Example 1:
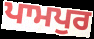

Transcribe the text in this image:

ਪਾਮਪੁਰ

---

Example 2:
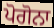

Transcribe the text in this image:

ਪੋਗੋਨਾ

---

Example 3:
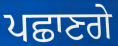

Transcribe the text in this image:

ਪਛਾਣਗੇ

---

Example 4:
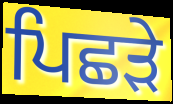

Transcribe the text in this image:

ਪਿਛੜੇ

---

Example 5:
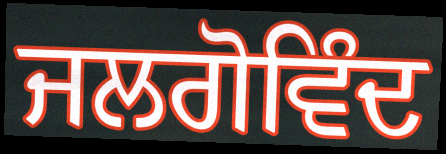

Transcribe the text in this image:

ਜਲਗੋਵਿੰਦ